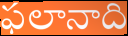
ఫలానాది